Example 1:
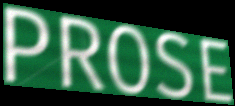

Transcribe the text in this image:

PROSE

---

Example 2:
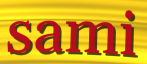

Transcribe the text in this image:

sami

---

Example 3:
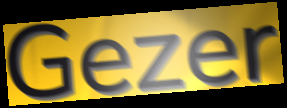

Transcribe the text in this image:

Gezer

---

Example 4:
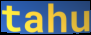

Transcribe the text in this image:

tahu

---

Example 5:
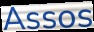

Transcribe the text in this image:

Assos